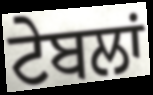
ਟੇਬਲਾਂ